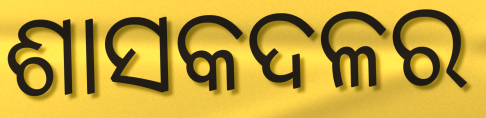
ଶାସକଦଳର